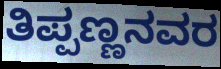
ತಿಪ್ಪಣ್ಣನವರ